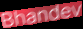
Bhandev